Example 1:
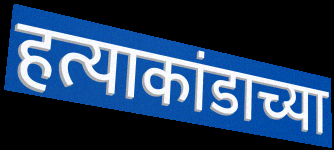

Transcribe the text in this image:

हत्याकांडाच्या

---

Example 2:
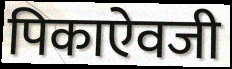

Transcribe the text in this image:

पिकाऐवजी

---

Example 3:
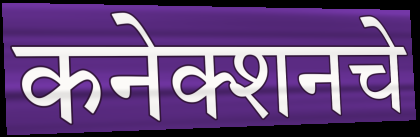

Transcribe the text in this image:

कनेक्शनचे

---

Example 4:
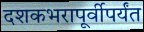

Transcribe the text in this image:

दशकभरापूर्वीपर्यंत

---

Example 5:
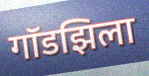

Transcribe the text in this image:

गॉडझिला